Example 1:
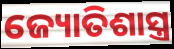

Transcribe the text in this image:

ଜ୍ୟୋତିଶାସ୍ତ୍ର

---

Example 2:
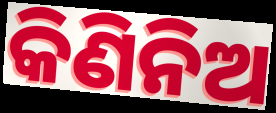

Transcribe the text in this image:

କିଣିନିଅ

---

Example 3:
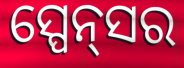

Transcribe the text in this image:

ସ୍ପେନ୍‌ସର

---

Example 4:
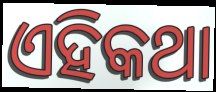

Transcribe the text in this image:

ଏହିକଥା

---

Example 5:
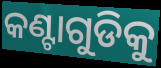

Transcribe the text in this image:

କଣ୍ଟାଗୁଡିକୁ